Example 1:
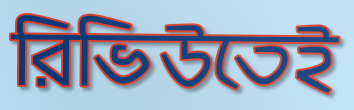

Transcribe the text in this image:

রিভিউতেই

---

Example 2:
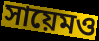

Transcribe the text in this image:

সায়েমও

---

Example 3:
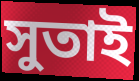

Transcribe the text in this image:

সুতাই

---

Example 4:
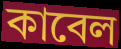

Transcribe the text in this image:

কাবেল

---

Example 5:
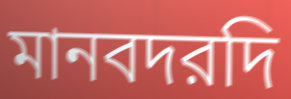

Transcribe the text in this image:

মানবদরদি